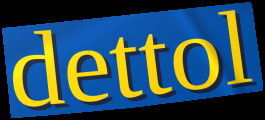
dettol